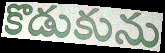
కొడుకును